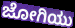
ಜೋಗಿಯು